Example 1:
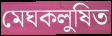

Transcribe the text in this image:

মেঘকলুষিত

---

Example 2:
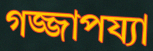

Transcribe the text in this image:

গজ্জাপয্যা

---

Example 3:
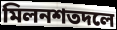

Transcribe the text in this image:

মিলনশতদলে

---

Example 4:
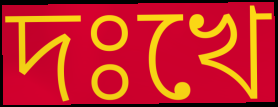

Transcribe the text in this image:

দঃখে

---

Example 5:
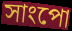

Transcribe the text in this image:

সাংপো